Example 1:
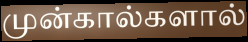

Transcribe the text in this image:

முன்கால்களால்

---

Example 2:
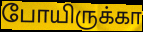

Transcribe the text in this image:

போயிருக்கா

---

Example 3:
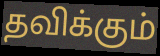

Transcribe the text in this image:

தவிக்கும்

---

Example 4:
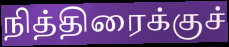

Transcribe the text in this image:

நித்திரைக்குச்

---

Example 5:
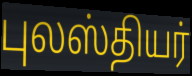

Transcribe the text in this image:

புலஸ்தியர்